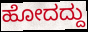
ಹೋದದ್ದು